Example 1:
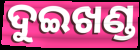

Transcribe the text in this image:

ଦୁଇଖଣ୍ଡ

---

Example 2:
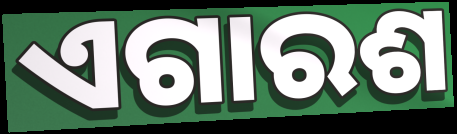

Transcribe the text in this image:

ଏଗାରଶ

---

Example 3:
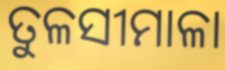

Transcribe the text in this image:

ତୁଳସୀମାଳା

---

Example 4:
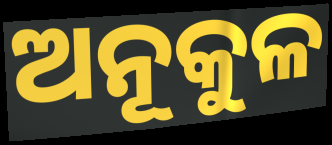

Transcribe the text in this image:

ଅନୂକୁଳ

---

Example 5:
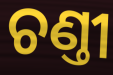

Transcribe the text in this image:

ଚଣ୍ତୀ